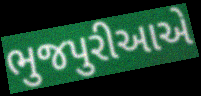
ભુજપુરીઆએ